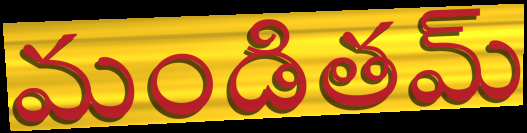
మండితమ్